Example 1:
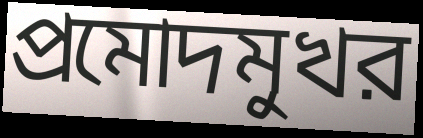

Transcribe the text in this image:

প্রমোদমুখর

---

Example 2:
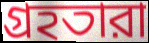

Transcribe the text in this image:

গ্রহতারা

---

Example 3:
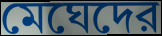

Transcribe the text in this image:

মেঘেদের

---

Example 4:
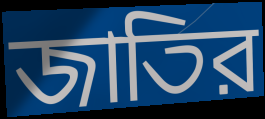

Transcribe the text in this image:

জাতির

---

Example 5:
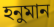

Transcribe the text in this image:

হনুমান